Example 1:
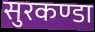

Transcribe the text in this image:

सुरकण्डा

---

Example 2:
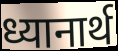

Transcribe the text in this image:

ध्यानार्थ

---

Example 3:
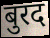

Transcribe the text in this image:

बुरद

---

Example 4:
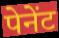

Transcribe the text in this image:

पेनेंट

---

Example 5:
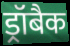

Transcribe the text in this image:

ड्रॉबैक